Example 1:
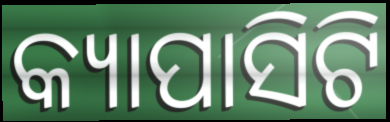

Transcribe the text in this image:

କ୍ୟାପାସିଟି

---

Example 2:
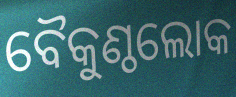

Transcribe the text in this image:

ବୈକୁଣ୍ଠଲୋକ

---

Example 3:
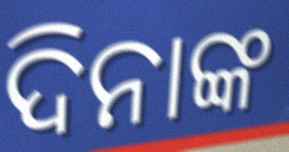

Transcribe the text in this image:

ଦିନାଙ୍କ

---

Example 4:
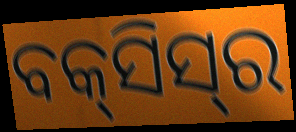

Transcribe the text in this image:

ବକ୍‌ସିସ୍‌ର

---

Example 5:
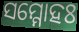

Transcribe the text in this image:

ସମ୍ମୋହଃ